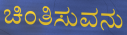
ಚಿಂತಿಸುವನು